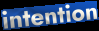
intention